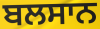
ਬਲਸਾਨ